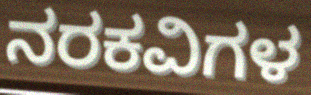
ನರಕವಿಗಳ